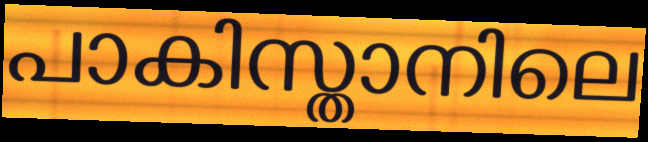
പാകിസ്താനിലെ